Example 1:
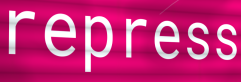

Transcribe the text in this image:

repress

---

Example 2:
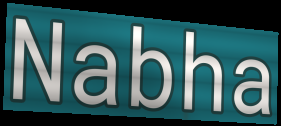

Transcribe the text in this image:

Nabha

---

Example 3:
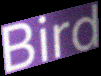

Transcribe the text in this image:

Bird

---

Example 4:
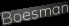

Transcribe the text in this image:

Boesman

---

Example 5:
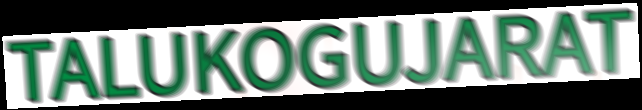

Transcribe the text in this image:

TALUKOGUJARAT